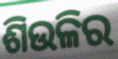
ଶିଉଳିର